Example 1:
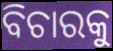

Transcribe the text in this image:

ବିଚାରକୁ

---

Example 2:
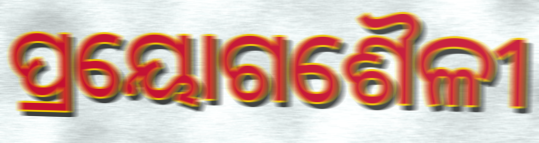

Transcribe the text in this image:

ପ୍ରୟୋଗଶୈଳୀ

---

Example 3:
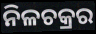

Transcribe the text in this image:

ନିଳଚକ୍ରର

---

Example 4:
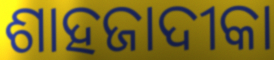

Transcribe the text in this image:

ଶାହଜାଦୀକା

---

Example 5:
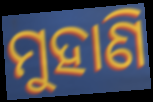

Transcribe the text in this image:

ମୁହାଣି